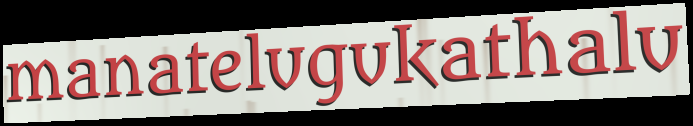
manatelugukathalu